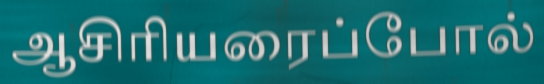
ஆசிரியரைப்போல்